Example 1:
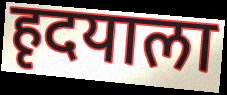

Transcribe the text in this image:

हृदयाला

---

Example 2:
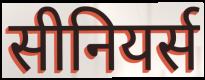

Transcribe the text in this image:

सीनियर्स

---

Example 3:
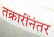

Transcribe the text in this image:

तक्रारींनंतर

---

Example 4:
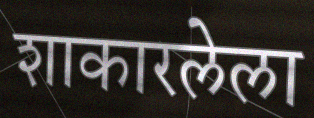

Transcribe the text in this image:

शाकारलेला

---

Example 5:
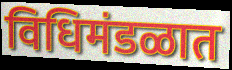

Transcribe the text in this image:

विधिमंडळात